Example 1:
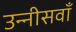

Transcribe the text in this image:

उन्‍नीसवाँ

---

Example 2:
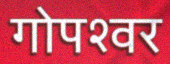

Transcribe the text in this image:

गोपश्वर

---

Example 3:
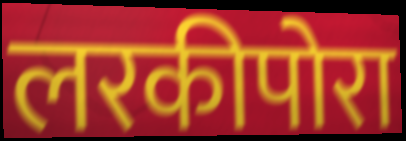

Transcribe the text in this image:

लरकीपोरा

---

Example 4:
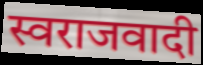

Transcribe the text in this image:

स्वराजवादी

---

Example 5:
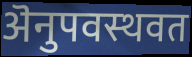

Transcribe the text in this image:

ऄनुपवस्थवत